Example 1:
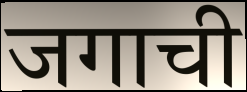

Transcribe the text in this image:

जगाची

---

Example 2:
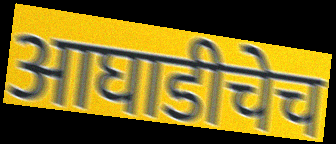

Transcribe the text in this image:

आघाडीचेच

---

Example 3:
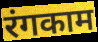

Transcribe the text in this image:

रंगकाम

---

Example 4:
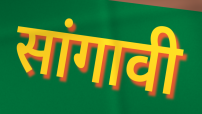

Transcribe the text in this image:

सांगावी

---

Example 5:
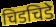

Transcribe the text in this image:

चिडचिडे